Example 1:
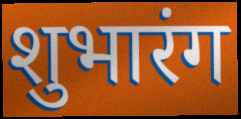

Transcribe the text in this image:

शुभारंग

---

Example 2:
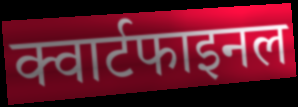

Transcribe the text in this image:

क्वार्टफाइनल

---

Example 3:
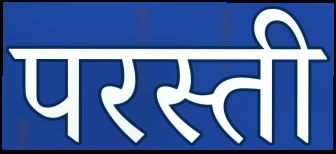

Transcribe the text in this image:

परस्ती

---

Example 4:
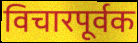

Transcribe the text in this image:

विचारपूर्वक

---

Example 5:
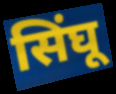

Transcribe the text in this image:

सिंघू